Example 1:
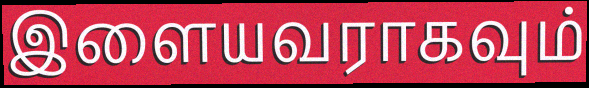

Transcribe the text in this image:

இளையவராகவும்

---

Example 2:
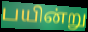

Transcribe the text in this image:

பயின்று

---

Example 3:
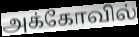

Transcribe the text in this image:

அக்கோவில்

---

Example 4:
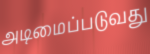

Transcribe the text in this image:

அடிமைப்படுவது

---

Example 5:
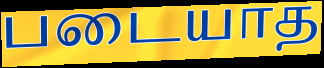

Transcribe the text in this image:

படையாத